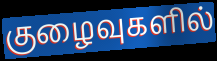
குழைவுகளில்